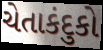
ચેતાકંદુકો